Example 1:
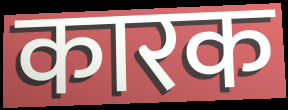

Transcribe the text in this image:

कारक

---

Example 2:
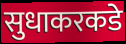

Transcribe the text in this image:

सुधाकरकडे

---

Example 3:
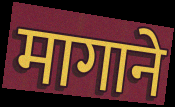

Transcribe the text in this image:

मागाने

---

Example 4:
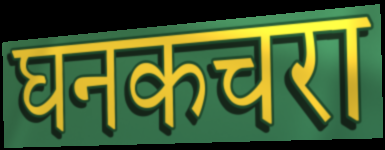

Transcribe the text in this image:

घनकचरा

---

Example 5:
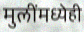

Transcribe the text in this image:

मुलींमध्येही